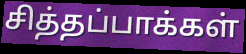
சித்தப்பாக்கள்